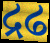
દ્રઢ